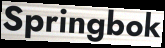
Springbok